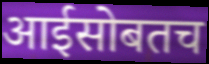
आईसोबतच